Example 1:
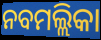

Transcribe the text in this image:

ନବମଲ୍ଲିକା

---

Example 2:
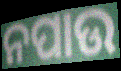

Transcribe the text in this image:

ନପାଉ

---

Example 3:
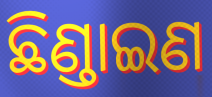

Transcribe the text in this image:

ଛିଣ୍ଡାଇଣ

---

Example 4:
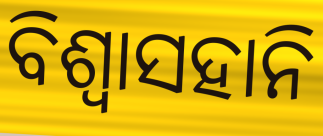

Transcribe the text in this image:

ବିଶ୍ବାସହାନି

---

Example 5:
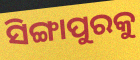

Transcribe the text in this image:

ସିଙ୍ଗାପୁରକୁ